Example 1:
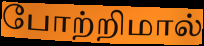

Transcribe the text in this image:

போற்றிமால்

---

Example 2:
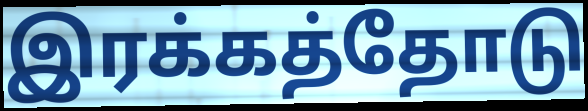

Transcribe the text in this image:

இரக்கத்தோடு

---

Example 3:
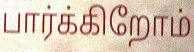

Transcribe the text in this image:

பார்க்கிறோம்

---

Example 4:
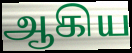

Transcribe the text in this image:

ஆகிய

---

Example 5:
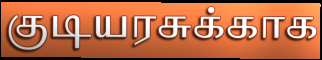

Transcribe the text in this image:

குடியரசுக்காக